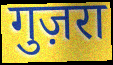
गुज़रा